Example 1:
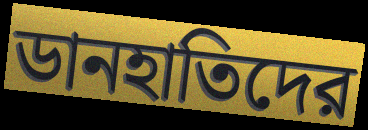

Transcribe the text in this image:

ডানহাতিদের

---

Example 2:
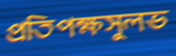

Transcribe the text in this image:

প্রতিপক্ষসুলভ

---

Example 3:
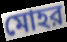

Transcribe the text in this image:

মোহর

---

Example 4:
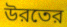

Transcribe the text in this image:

উরতের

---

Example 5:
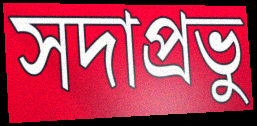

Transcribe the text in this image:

সদাপ্রভু